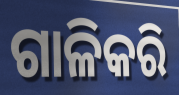
ଗାଳିକରି